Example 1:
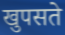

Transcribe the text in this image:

खुपसते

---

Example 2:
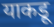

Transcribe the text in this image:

याकडू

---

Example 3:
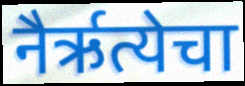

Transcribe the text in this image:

नैर्ऋत्येचा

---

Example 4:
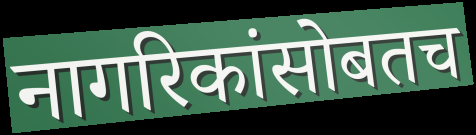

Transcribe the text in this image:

नागरिकांसोबतच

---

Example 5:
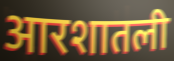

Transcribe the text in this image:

आरशातली